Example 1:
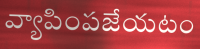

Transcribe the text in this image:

వ్యాపింపజేయటం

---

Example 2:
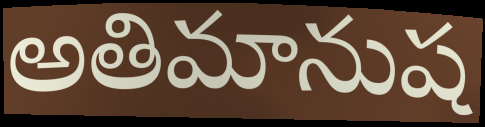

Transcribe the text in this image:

అతిమానుష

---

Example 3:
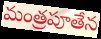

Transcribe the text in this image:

మంత్రపూతేన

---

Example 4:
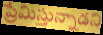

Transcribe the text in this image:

ప్రేమిస్తున్నాడని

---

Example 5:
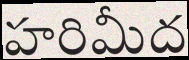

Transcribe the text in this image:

హరిమీద